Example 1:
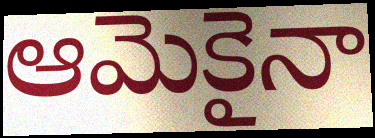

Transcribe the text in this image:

ఆమెకైనా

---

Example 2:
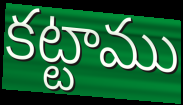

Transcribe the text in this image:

కట్టాము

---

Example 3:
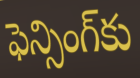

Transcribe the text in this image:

ఫెన్సింగ్‌కు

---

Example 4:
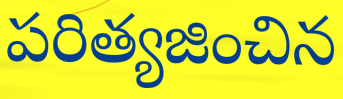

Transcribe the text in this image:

పరిత్యజించిన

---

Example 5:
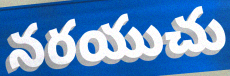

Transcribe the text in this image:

నరయుచు